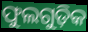
ଫୁଲଗୁଡ଼ିକ